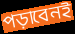
পড়াবেনই